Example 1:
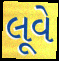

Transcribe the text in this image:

લૂવે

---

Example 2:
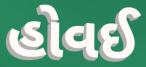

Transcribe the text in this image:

હોવઈ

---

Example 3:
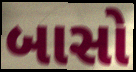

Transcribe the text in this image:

બાસો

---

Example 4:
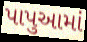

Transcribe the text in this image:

પાપુઆમાં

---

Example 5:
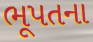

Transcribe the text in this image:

ભૂપતના